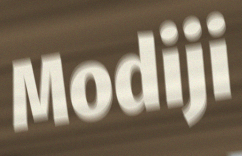
Modiji